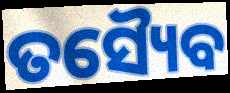
ତସ୍ୟୈବ